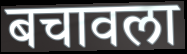
बचावला